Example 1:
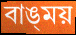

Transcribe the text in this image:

বাঙ্‌ময়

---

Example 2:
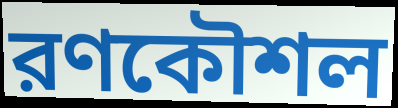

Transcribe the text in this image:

রণকৌশল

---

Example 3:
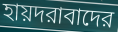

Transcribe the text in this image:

হায়দরাবাদের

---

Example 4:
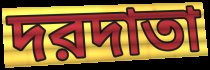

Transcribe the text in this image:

দরদাতা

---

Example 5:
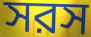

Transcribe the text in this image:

সরস